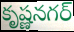
కృష్ణనగర్